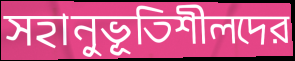
সহানুভূতিশীলদের